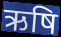
ऋषि